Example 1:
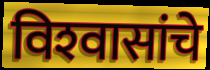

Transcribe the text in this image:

विश्‍वासांचे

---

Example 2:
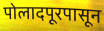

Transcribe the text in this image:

पोलादपूरपासून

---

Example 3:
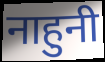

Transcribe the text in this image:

नाहुनी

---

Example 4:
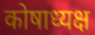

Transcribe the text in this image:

कोषाध्यक्ष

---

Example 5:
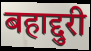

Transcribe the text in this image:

बहाद्दुरी